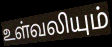
உள்வலியும்